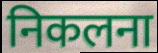
निकलना